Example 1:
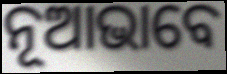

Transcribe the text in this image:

ନୂଆଭାବେ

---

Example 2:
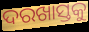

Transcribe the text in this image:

ଦରଖାସ୍ତକୁ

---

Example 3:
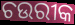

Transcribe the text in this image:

ଚଉରୀକ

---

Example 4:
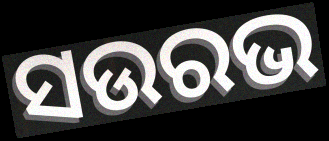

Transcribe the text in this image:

ସଉରଭ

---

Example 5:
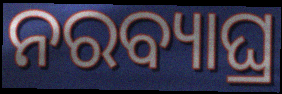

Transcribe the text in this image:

ନରବ୍ୟାଘ୍ର